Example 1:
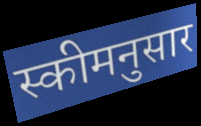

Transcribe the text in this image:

स्कीमनुसार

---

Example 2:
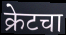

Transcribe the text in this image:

क्रेटचा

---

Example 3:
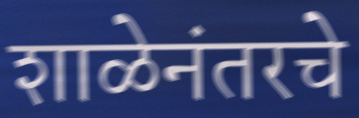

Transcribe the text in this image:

शाळेनंतरचे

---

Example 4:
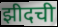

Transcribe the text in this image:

झीदची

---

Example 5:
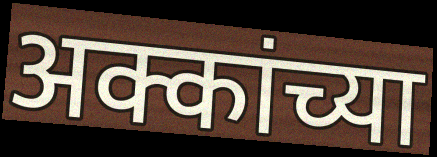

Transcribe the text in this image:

अक्कांच्या